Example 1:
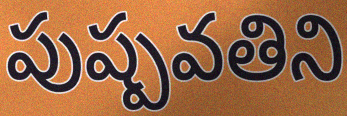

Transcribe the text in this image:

పుష్పవతిని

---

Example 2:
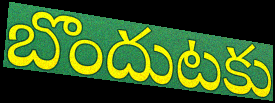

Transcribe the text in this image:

బొందుటకు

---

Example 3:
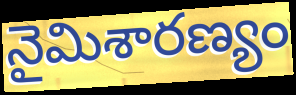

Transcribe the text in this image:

నైమిశారణ్యం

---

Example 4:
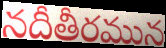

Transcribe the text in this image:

నదీతీరమున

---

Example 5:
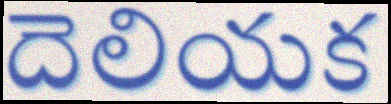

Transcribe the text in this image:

దెలియక